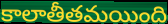
కాలాతీతమయింది